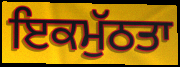
ਇਕਮੁੱਠਤਾ